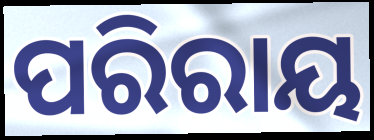
ପରିରାୟ